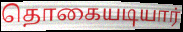
தொகையடியார்